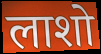
लाशो